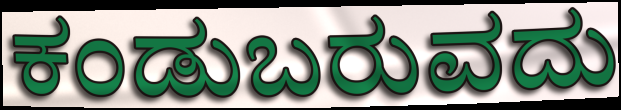
ಕಂಡುಬರುವದು